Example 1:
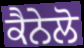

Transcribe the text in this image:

ਕੈਨੇਲੋ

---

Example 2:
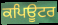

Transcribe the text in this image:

ਕਪਿਊਟਰ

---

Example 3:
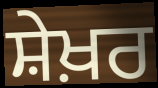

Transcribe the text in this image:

ਸ਼ੇਖ਼ਰ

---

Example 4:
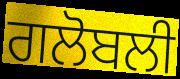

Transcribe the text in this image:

ਗਲੋਬਲੀ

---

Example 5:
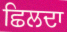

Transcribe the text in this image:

ਛਿਲਦਾ